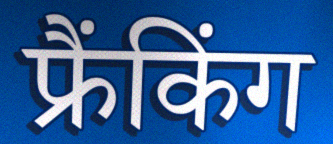
फ्रैंकिंग